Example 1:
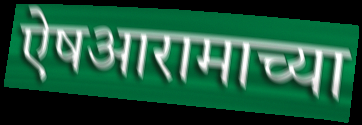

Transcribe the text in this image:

ऐषआरामाच्या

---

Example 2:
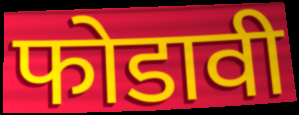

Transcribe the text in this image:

फोडावी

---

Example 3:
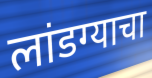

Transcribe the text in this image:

लांडग्याचा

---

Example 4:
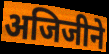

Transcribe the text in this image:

अजिजीने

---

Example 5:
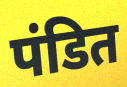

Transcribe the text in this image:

पंडित